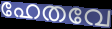
ഹേതവേ